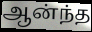
ஆன்ந்த